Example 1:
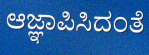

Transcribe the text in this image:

ಆಜ್ಞಾಪಿಸಿದಂತೆ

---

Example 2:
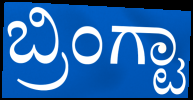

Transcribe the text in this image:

ಬ್ರಿಂಗ್ಟಾ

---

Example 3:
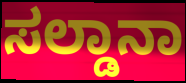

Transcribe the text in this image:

ಸಲ್ಡಾನಾ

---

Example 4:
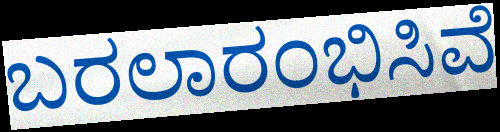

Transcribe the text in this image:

ಬರಲಾರಂಭಿಸಿವೆ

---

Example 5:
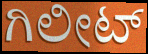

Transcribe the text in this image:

ಗಿಲೀಟ್